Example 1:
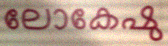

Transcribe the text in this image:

ലോകേഷു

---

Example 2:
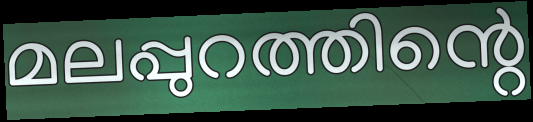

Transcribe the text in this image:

മലപ്പുറത്തിന്റെ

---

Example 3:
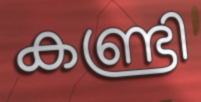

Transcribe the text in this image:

കണ്ട്രി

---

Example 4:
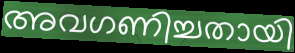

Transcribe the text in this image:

അവഗണിച്ചതായി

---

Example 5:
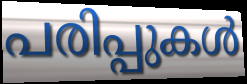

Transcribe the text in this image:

പരിപ്പുകൾ